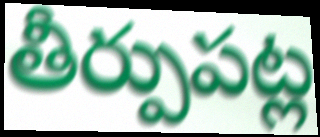
తీర్పుపట్ల